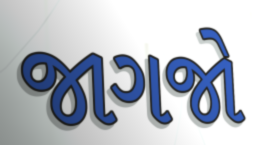
જાગજો